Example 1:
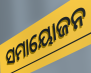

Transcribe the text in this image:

ସମାୟୋଜନ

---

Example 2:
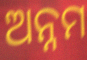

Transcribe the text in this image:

ଅନ୍ନମ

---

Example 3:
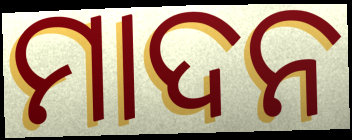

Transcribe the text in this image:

ମାଦନ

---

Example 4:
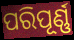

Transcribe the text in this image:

ପରିପୂର୍ଣ୍ଣ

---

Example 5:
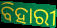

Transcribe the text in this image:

ବିହାରୀ